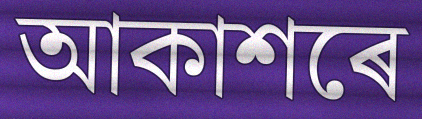
আকাশৰে